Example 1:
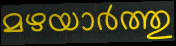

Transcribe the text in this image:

മഴയാർത്തു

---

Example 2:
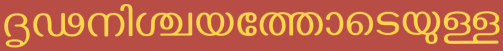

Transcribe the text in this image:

ദൃഢനിശ്ചയത്തോടെയുള്ള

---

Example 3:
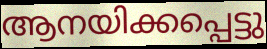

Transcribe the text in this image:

ആനയിക്കപ്പെട്ടു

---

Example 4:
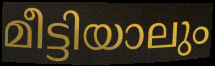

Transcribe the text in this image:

മീട്ടിയാലും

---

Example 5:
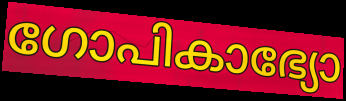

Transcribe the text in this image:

ഗോപികാഭ്യോ